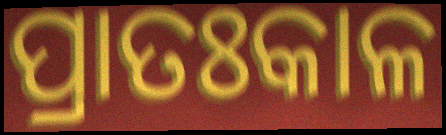
ପ୍ରାତଃକାଳ